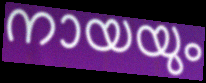
നായയും